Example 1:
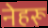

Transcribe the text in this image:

नेहरू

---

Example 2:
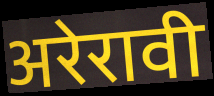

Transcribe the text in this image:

अरेरावी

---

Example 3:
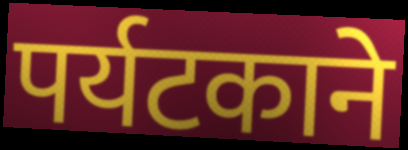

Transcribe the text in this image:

पर्यटकाने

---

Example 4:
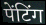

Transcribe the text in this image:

पेंटिंग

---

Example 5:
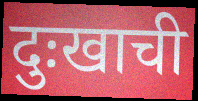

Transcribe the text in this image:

दुःखाची